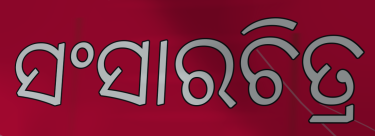
ସଂସାରଚିତ୍ର